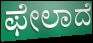
ಫೇಲಾದೆ